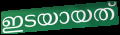
ഇടയായത്